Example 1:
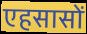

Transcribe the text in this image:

एहसासों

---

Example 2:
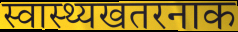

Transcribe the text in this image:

स्वास्थ्यखतरनाक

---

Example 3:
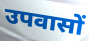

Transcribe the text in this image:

उपवासों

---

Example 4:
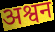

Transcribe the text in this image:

अश्वन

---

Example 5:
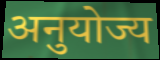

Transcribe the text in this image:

अनुयोज्य